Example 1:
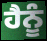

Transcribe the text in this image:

ਹੈਨੂੰ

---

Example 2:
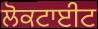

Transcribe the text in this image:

ਲੋਕਟਾਈਟ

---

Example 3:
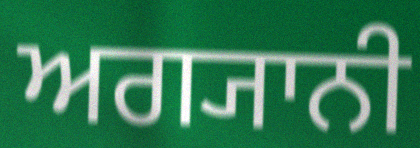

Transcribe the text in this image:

ਅਗ੍ਯਾਨੀ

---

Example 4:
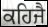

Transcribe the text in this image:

ਕਹਿਜੈ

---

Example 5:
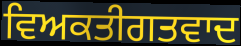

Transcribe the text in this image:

ਵਿਅਕਤੀਗਤਵਾਦ